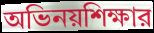
অভিনয়শিক্ষার